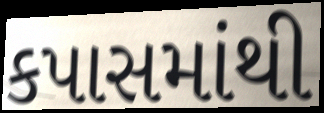
કપાસમાંથી